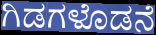
ಗಿಡಗಳೊಡನೆ